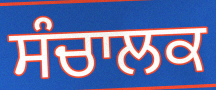
ਸੰਚਾਲਕ